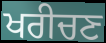
ਖਰੀਚਣ